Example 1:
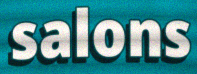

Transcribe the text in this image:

salons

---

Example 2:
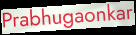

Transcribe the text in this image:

Prabhugaonkar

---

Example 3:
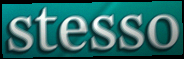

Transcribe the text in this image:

stesso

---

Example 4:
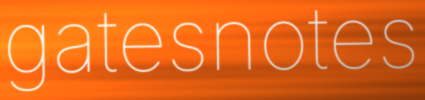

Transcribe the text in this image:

gatesnotes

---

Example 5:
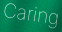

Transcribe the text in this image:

Caring